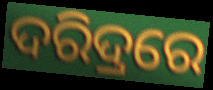
ଦରିଦ୍ରରେ